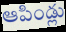
ఆపిండ్లు